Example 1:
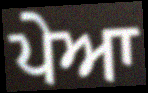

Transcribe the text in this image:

ਪੇਆ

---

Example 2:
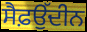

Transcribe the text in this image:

ਸੈਫ਼ਉੱਦੀਨ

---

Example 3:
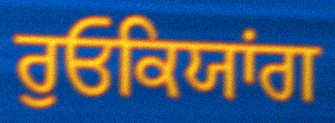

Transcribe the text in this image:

ਰੁਓਕਿਯਾਂਗ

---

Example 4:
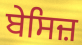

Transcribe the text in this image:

ਬੇਸਿਜ਼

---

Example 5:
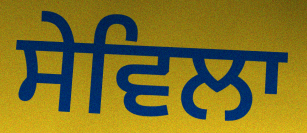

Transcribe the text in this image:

ਸੇਵਿਲਾ